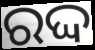
ରଦ୍ଦ